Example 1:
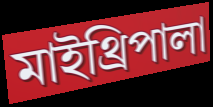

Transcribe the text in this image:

মাইথ্রিপালা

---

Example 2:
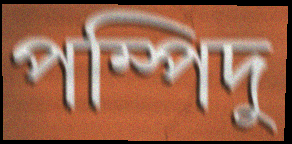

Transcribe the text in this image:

পম্পিদু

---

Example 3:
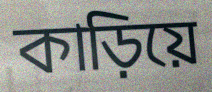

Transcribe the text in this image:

কাড়িয়ে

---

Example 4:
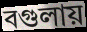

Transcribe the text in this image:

বগুলায়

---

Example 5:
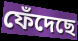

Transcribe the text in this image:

ফেঁদেছে